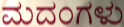
ಮದಂಗಳು